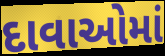
દાવાઓમાં